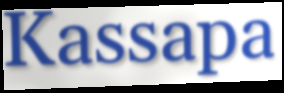
Kassapa